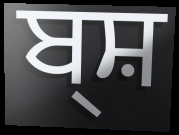
ਬ੍ਸ਼